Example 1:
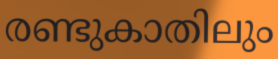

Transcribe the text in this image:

രണ്ടുകാതിലും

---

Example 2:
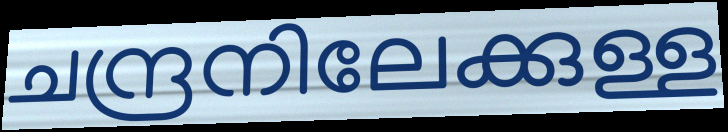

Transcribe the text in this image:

ചന്ദ്രനിലേക്കുള്ള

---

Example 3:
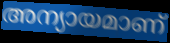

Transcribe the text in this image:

അന്യായമാണ്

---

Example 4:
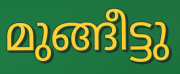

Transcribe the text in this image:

മുങ്ങീട്ടു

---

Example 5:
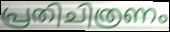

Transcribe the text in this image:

പ്രതിചിത്രണം